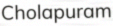
Cholapuram